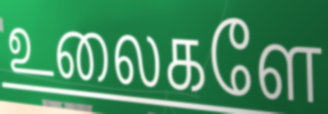
உலைகளே